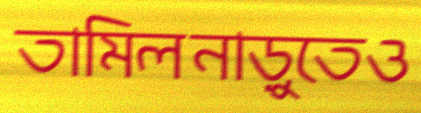
তামিলনাড়ুতেও